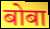
बोबा